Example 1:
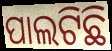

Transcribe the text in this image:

ପାଲଟିଛି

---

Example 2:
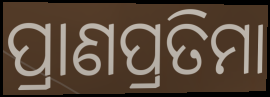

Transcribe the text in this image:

ପ୍ରାଣପ୍ରତିମା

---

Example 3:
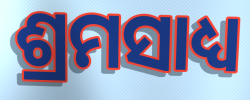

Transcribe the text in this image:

ଶ୍ରମସାଧ୍ୟ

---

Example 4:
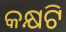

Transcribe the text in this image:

କକ୍ଷଟି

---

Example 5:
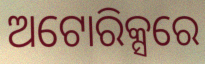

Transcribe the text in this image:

ଅଟୋରିକ୍ସରେ